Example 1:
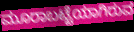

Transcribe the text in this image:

ಮೂರಾಬಟ್ಟೆಯಾಗಿರುವ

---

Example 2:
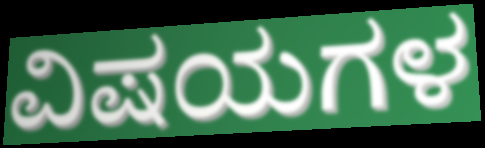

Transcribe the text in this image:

ವಿಷಯಗಳ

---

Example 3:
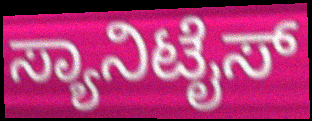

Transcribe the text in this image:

ಸ್ಯಾನಿಟೈಸ್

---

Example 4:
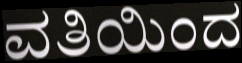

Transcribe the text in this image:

ವತಿಯಿಂದ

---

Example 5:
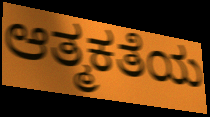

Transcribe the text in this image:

ಆತ್ಮಕತೆಯ